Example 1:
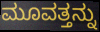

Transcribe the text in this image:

ಮೂವತ್ತನ್ನು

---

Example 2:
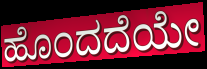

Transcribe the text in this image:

ಹೊಂದದೆಯೇ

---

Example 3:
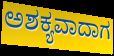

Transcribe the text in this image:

ಅಶಕ್ಯವಾದಾಗ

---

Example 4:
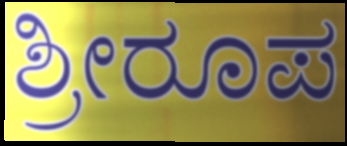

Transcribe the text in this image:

ಶ್ರೀರೂಪ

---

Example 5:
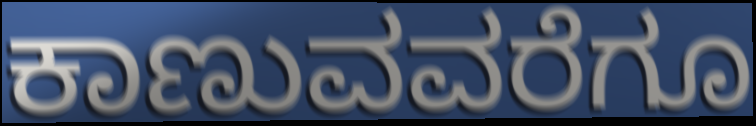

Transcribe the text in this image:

ಕಾಣುವವರೆಗೂ